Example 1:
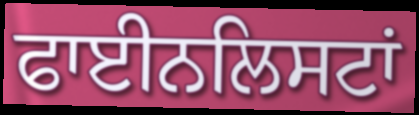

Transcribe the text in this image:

ਫਾਈਨਲਿਸਟਾਂ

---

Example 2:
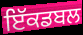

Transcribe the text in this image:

ਇੱਕਡਬਲ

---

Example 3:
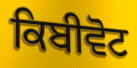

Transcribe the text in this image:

ਕਿਬੀਵੋਟ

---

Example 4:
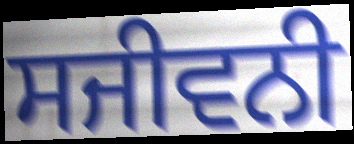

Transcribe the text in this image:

ਸਜੀਵਨੀ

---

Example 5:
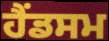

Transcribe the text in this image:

ਹੈਂਡਸਮ